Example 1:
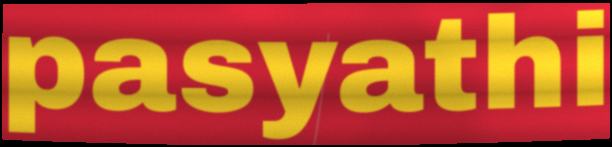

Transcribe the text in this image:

pasyathi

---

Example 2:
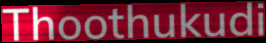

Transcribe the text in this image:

Thoothukudi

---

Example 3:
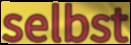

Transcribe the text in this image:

selbst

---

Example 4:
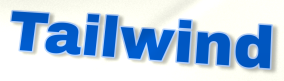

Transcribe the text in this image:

Tailwind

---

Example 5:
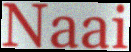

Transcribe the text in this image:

Naai